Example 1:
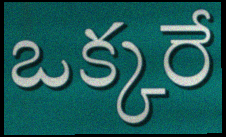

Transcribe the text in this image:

ఒక్కరే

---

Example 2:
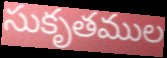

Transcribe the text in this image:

సుకృతముల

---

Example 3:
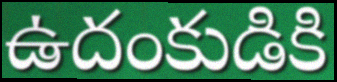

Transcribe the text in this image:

ఉదంకుడికి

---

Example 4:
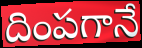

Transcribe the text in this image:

దింపగానే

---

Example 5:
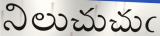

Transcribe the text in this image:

నిలుచుచుఁ